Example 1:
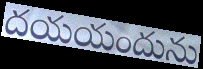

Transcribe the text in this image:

దయయందును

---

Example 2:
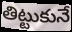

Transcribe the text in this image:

తిట్టుకునే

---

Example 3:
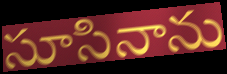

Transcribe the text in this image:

సూసినాను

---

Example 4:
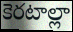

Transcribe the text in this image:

కెరటాల్లా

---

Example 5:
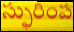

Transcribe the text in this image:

స్ఫురింప